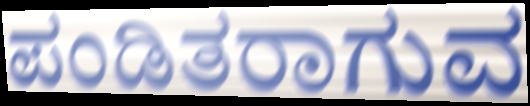
ಪಂಡಿತರಾಗುವ